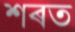
শৰত